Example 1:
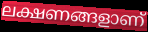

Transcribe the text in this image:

ലക്ഷണങ്ങളാണ്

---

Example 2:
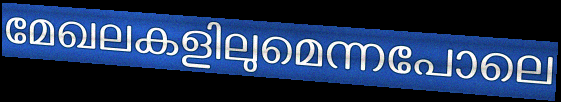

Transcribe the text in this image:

മേഖലകളിലുമെന്നപോലെ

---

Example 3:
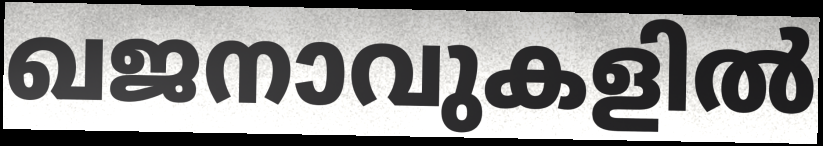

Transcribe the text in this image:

ഖജനാവുകളിൽ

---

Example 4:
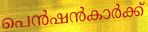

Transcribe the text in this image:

പെൻഷൻകാർക്ക്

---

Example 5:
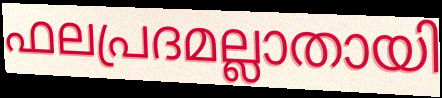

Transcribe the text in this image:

ഫലപ്രദമല്ലാതായി